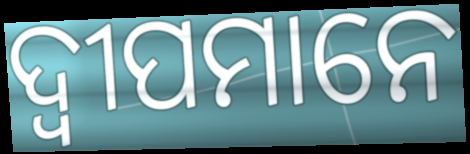
ଦ୍ୱୀପମାନେ